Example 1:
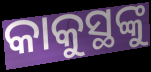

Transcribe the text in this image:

କାକୁସ୍ଥଙ୍କୁ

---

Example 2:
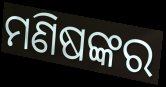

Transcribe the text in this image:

ମଣିଷଙ୍କର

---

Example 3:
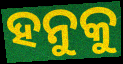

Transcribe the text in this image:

ହନୁକୁ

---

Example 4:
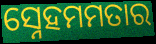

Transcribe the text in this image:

ସ୍ନେହମମତାର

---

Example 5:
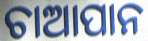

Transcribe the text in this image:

ଚାଆପାନ